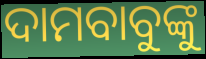
ଦାମବାବୁଙ୍କୁ